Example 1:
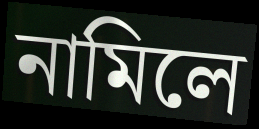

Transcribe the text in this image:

নামিলে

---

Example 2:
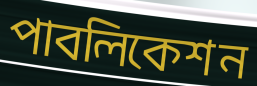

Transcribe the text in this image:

পাবলিকেশন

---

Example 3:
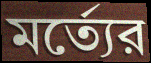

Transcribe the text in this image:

মর্ত্যের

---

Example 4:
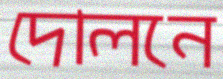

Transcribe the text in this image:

দোলনে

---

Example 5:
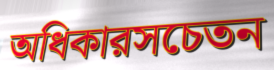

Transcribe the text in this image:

অধিকারসচেতন